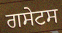
ਗਸੇਟਸ